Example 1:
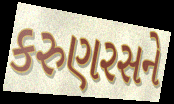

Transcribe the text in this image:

કરુણરસને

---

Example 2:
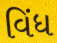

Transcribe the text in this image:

વિંધ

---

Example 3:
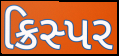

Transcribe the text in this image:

ક્રિસ્પર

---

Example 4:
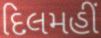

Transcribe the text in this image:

દિલમહીં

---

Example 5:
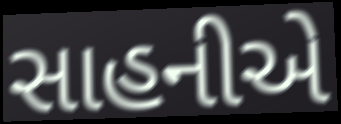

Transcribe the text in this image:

સાહનીએ